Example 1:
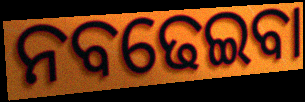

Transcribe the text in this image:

ନବଢେଇବା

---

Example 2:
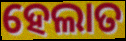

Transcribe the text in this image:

ହେଲାତ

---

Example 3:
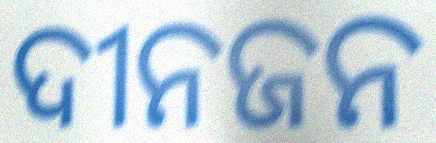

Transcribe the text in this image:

ଦୀନଜନ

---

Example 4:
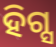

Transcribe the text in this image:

ହିଗ୍ସ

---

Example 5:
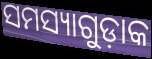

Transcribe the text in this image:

ସମସ୍ୟାଗୁଡ଼ାକ